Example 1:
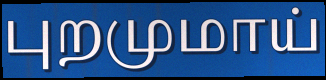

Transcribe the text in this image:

புறமுமாய்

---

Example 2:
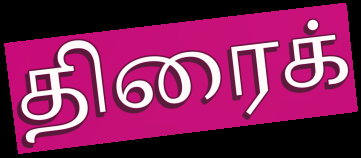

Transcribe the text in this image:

திரைக்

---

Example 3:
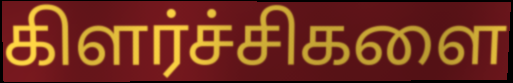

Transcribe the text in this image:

கிளர்ச்சிகளை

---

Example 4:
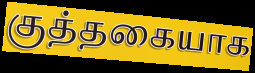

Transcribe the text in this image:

குத்தகையாக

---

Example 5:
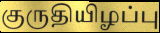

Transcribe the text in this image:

குருதியிழப்பு